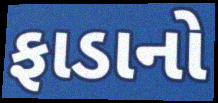
ફાડાનો